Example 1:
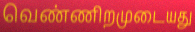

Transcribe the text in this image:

வெண்ணிறமுடையது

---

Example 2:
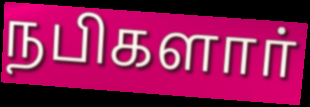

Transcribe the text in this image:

நபிகளார்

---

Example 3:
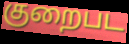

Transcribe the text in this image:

குறைபட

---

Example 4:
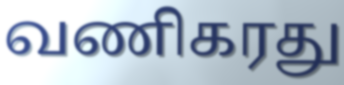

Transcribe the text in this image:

வணிகரது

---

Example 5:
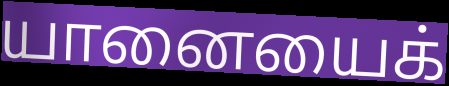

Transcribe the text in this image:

யானையைக்